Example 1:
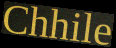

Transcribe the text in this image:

Chhile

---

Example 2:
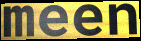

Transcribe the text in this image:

meen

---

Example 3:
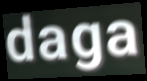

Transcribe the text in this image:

daga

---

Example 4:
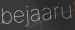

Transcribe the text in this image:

bejaaru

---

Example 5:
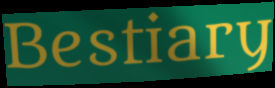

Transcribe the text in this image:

Bestiary